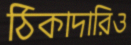
ঠিকাদারিও